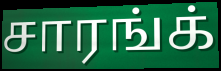
சாரங்க்